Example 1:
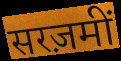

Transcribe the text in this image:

सरज़मीं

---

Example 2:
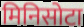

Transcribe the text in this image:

मिनिसोटा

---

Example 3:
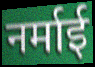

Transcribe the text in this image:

नर्माई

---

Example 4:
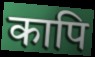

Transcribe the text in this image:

कापि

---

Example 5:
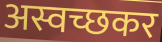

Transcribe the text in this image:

अस्वच्छकर